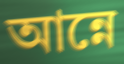
আন্নে